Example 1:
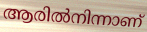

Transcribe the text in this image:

ആരിൽനിന്നാണ്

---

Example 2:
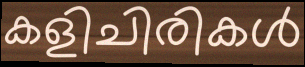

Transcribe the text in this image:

കളിചിരികൾ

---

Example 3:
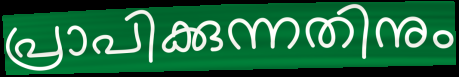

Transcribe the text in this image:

പ്രാപിക്കുന്നതിനും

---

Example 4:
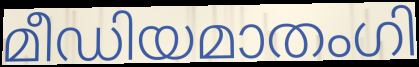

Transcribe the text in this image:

മീഡിയമാതംഗി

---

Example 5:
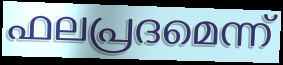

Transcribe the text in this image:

ഫലപ്രദമെന്ന്